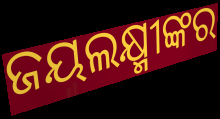
ଜୟଲକ୍ଷ୍ମୀଙ୍କର